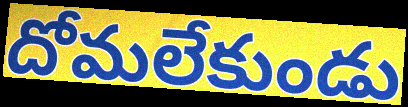
దోమలేకుండు